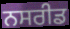
ਨਸਰੀਡ